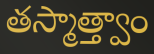
తస్మాత్త్వాం